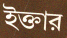
ইক্তার